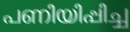
പണിയിപ്പിച്ച